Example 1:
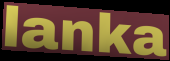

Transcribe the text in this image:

lanka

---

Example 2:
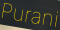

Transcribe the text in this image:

Purani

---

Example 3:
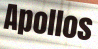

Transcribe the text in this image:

Apollos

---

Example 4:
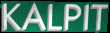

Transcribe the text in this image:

KALPIT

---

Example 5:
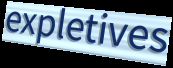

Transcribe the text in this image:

expletives